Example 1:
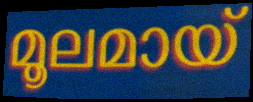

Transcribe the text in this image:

മൂലമായ്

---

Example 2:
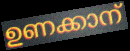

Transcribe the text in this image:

ഉണക്കാന്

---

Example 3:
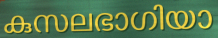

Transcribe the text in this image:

കുസലഭാഗിയാ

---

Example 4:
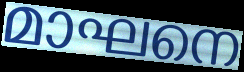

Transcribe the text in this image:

മാഘനെ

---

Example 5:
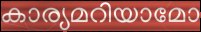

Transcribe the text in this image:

കാര്യമറിയാമോ